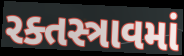
રક્તસ્ત્રાવમાં